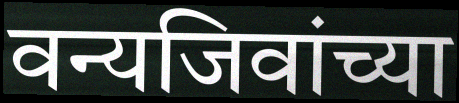
वन्यजिवांच्या